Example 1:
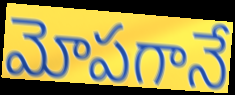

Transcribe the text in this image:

మోపగానే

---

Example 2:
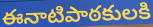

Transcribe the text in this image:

ఈనాటిపాఠకులకి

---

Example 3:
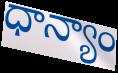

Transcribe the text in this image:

ధాన్యాం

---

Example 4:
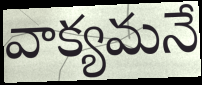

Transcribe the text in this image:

వాక్యమనే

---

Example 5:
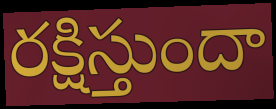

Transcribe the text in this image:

రక్షిస్తుందా